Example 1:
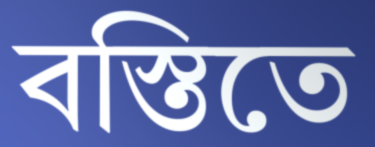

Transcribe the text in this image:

বস্তিতে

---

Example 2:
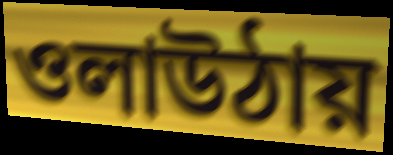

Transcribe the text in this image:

ওলাউঠায়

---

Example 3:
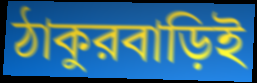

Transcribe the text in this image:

ঠাকুরবাড়িই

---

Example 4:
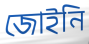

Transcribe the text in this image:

জোইনি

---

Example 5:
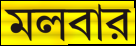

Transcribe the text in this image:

মলবার